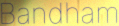
Bandham